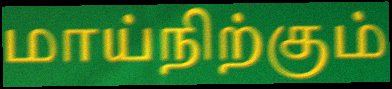
மாய்நிற்கும்